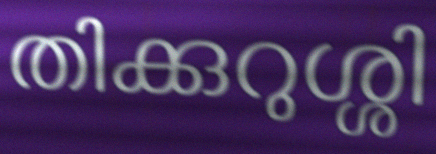
തിക്കുറുശ്ശി